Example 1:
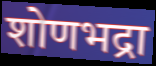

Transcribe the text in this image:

शोणभद्रा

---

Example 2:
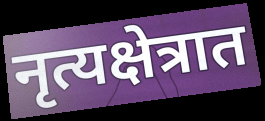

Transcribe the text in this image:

नृत्यक्षेत्रात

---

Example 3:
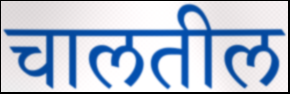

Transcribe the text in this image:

चालतील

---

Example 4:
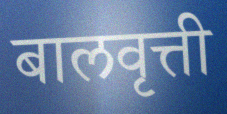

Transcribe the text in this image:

बालवृत्ती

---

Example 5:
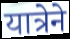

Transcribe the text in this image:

यात्रेने